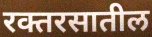
रक्तरसातील